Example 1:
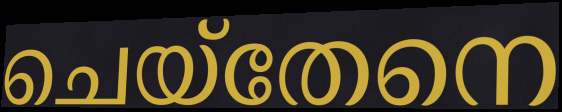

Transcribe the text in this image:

ചെയ്തേനെ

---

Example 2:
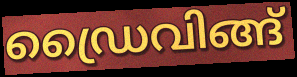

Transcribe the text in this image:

ഡ്രൈവിങ്ങ്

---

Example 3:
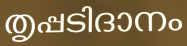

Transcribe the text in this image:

തൃപ്പടിദാനം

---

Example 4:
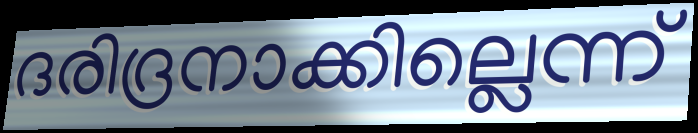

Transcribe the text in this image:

ദരിദ്രനാക്കില്ലെന്ന്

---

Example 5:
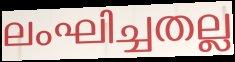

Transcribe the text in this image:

ലംഘിച്ചതല്ല